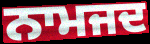
ਨਾਮਜਦ